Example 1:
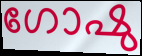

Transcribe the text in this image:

ഗോഷു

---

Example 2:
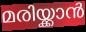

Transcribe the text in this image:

മരിയ്ക്കാൻ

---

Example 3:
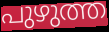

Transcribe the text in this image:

പുഴുത്ത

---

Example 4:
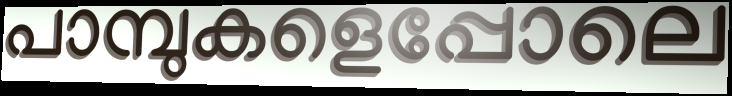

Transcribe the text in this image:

പാമ്പുകളെപ്പോലെ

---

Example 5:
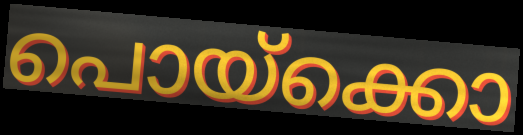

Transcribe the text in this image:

പൊയ്ക്കൊ